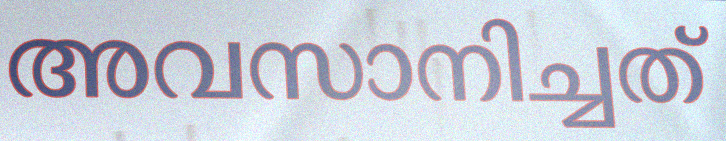
അവസാനിച്ചത്